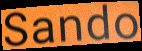
Sando